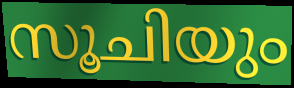
സൂചിയും